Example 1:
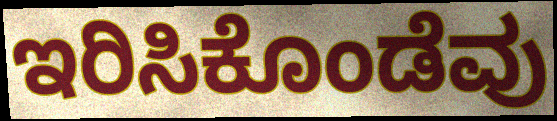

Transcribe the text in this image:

ಇರಿಸಿಕೊಂಡೆವು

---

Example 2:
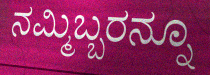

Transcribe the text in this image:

ನಮ್ಮಿಬ್ಬರನ್ನೂ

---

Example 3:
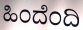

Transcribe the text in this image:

ಹಿಂದೆಂದಿ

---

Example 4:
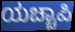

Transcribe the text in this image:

ಯಚ್ಚಾಪಿ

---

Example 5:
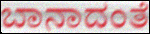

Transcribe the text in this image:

ಬಾನಾದಂತೆ